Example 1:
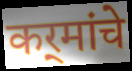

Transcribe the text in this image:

कर्मांचे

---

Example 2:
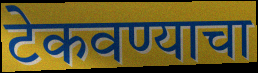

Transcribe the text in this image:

टेकवण्याचा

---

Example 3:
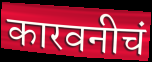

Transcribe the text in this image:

कारवनीचं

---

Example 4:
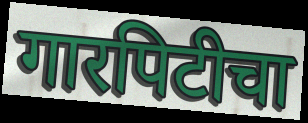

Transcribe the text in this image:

गारपिटीचा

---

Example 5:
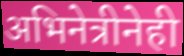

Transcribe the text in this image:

अभिनेत्रीनेही